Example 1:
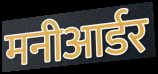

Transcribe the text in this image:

मनीआर्डर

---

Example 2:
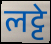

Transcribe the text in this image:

लट्टे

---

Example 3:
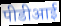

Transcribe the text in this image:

पीडीआई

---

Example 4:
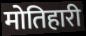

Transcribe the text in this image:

मोतिहारी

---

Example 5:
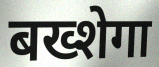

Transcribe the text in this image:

बख्शेगा